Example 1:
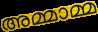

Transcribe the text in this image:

അമ്മാമ്മ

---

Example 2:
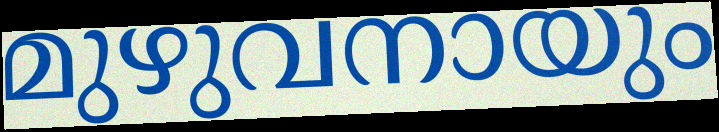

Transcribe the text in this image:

മുഴുവനായും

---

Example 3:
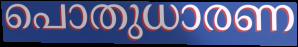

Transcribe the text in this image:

പൊതുധാരണ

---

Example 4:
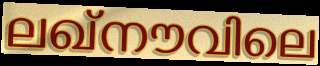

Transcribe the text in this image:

ലഖ്നൗവിലെ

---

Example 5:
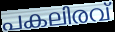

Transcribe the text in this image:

പകലിരവ്